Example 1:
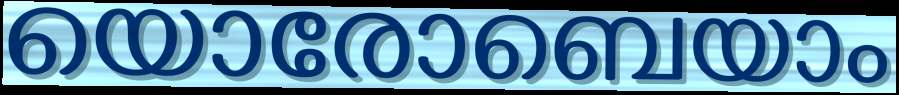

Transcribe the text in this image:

യൊരോബെയാം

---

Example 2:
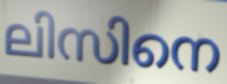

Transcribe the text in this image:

ലിസിനെ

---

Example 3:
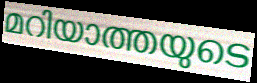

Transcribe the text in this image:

മറിയാത്തയുടെ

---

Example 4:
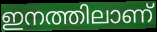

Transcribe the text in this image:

ഇനത്തിലാണ്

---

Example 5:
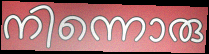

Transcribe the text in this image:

നിന്നൊരു